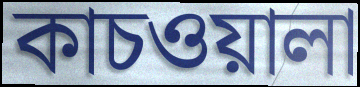
কাচওয়ালা